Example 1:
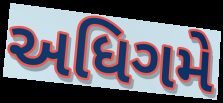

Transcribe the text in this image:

અધિગમે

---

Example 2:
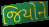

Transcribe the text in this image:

જિયોને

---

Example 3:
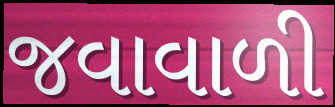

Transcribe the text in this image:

જવાવાળી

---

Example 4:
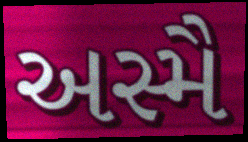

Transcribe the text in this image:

અસ્મૈ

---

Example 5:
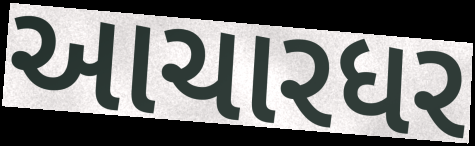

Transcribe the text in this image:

આચારધર